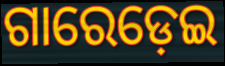
ଗାରେଡ଼େଇ